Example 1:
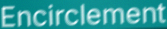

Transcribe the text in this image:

Encirclement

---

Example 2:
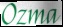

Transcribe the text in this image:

Ozma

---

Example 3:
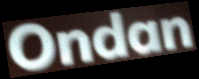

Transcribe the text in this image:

Ondan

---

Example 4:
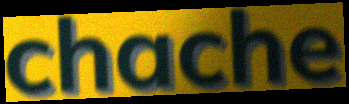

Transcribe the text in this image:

chache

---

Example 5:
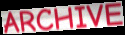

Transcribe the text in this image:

ARCHIVE